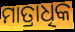
ମାତ୍ରାଧିକ